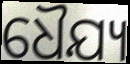
ଧୈଯ୍ଯ